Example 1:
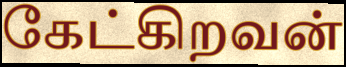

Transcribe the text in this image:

கேட்கிறவன்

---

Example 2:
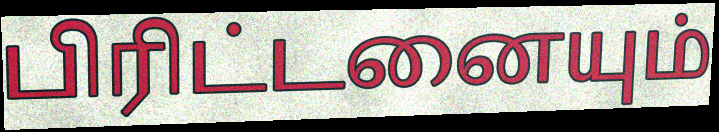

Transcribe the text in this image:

பிரிட்டனையும்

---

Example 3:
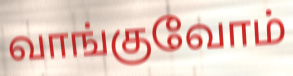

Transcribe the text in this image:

வாங்குவோம்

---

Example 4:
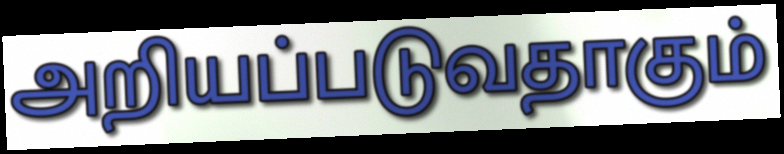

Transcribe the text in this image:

அறியப்படுவதாகும்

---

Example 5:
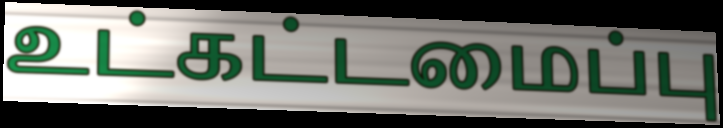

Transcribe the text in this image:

உட்கட்டமைப்பு